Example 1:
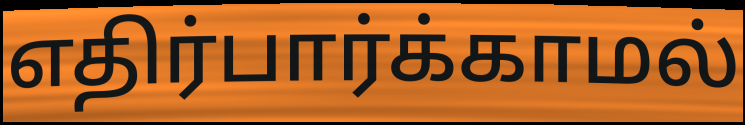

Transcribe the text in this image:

எதிர்பார்க்காமல்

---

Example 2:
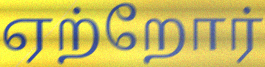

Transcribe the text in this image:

ஏற்றோர்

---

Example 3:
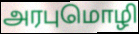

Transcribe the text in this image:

அரபுமொழி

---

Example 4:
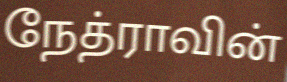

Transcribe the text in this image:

நேத்ராவின்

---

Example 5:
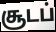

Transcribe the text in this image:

சூடப்